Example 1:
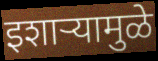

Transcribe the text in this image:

इशाऱ्यामुळे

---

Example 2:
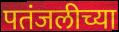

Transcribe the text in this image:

पतंजलीच्या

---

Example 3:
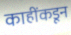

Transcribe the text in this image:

काहींकडून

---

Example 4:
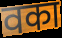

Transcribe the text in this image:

वका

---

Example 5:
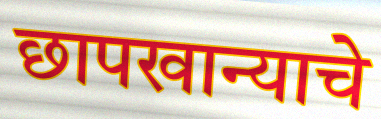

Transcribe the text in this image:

छापखान्याचे